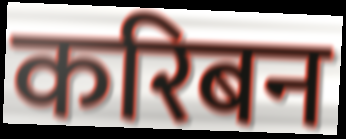
करिबन